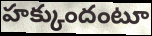
హక్కుందంటూ